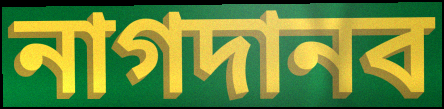
নাগদানব